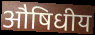
औषिधीय